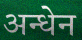
अन्धेन